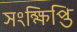
সংক্ষিপ্তি